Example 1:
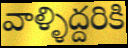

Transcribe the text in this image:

వాళ్ళిద్దరికి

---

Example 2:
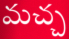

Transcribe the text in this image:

మచ్చ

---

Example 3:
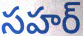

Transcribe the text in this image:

సహర్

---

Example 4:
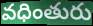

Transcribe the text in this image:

వధింతురు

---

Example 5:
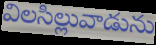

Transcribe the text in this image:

విలసిల్లువాడును